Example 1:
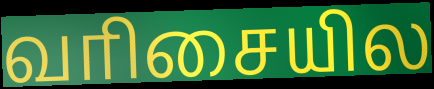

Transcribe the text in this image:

வரிசையில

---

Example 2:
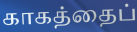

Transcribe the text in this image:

காகத்தைப்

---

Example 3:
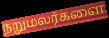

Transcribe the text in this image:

நறுமலர்களை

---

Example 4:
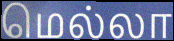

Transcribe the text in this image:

மெல்லா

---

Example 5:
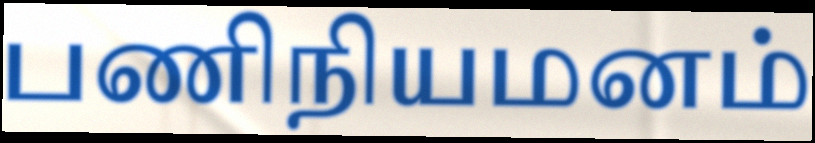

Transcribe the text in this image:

பணிநியமனம்